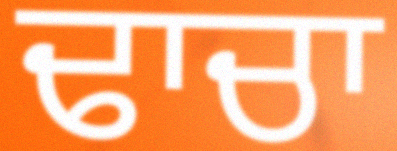
ਢਾਚਾ